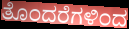
ತೊಂದರೆಗಳಿಂದ